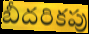
బీదరికపు